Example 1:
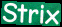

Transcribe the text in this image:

Strix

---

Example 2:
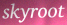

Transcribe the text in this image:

skyroot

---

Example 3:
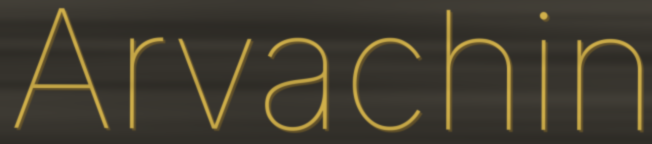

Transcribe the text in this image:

Arvachin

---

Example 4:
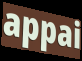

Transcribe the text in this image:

appai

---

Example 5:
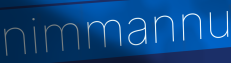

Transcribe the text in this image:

nimmannu